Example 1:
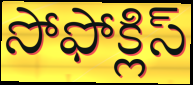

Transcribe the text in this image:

సోఫోక్లిస్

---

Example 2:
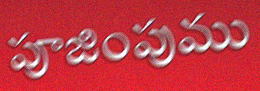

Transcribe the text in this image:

పూజింపుము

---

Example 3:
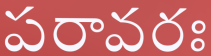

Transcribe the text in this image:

పరావరః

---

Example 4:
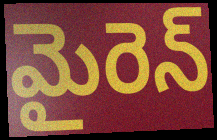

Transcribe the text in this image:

మైరెన్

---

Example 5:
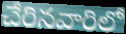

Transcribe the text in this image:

చేరినవారిలో